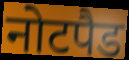
नोटपैड